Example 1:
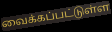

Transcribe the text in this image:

வைக்கப்பட்டுள்ள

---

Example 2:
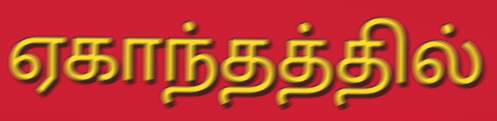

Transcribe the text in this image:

ஏகாந்தத்தில்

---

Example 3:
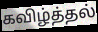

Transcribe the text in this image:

கவிழ்த்தல்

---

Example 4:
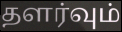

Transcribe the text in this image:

தளர்வும்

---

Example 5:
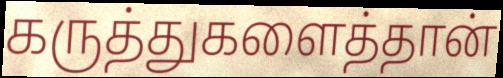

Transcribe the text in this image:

கருத்துகளைத்தான்